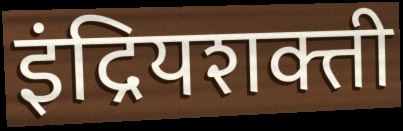
इंद्रियशक्ती